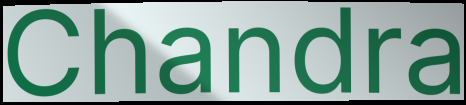
Chandra